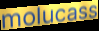
molucass